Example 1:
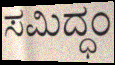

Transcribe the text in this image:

ಸಮಿದ್ಧಂ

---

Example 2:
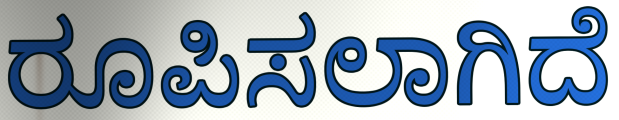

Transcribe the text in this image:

ರೂಪಿಸಲಾಗಿದೆ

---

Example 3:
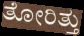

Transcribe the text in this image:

ತೋರಿತ್ತು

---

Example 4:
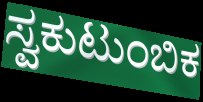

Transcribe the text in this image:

ಸ್ವಕುಟುಂಬಿಕ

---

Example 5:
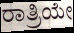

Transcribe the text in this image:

ರಾತ್ರಿಯೇ